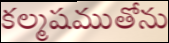
కల్మషముతోను